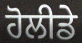
ਹੋਲੀਡੇ